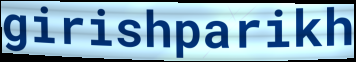
girishparikh